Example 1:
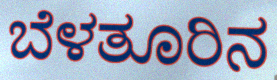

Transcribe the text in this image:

ಬೆಳತೂರಿನ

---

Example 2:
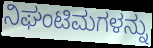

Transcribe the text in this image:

ನಿಘಂಟಿಮಗಳನ್ನು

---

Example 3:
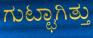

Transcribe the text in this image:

ಗುಟ್ಟಾಗಿತ್ತು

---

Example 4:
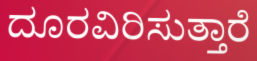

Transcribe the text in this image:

ದೂರವಿರಿಸುತ್ತಾರೆ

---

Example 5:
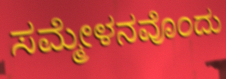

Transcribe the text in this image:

ಸಮ್ಮೇಳನವೊಂದು